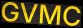
GVMC